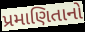
પ્રમાણિતાનો